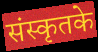
संस्कृतके